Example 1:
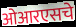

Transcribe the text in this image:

ओआरएसचे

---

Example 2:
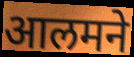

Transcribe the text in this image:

आलमने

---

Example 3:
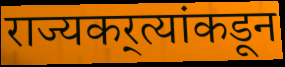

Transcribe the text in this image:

राज्यकर्त्यांकडून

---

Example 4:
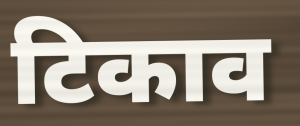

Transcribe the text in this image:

टिकाव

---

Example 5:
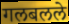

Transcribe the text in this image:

गलबलले